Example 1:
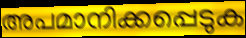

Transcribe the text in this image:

അപമാനിക്കപ്പെടുക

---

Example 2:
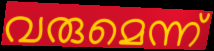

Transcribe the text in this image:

വരുമെന്ന്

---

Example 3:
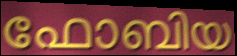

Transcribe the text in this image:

ഫോബിയ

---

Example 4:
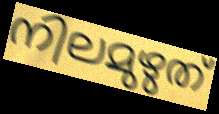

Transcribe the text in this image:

നിലമുഴുത്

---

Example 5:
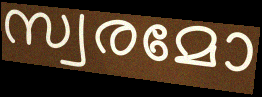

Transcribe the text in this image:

സ്വരമോ